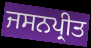
ਜਸਨਪ੍ਰੀਤ